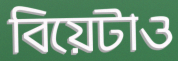
বিয়েটাও